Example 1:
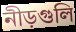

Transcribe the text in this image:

নীড়গুলি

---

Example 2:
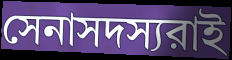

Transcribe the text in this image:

সেনাসদস্যরাই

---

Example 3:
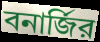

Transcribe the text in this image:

বনার্জির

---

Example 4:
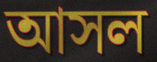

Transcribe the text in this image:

আসল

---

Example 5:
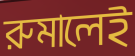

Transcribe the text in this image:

রুমালেই